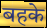
बहके